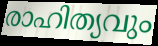
രാഹിത്യവും